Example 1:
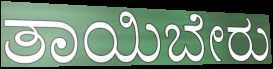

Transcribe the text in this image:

ತಾಯಿಬೇರು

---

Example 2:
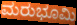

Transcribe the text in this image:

ಮರುಭೂಮಿ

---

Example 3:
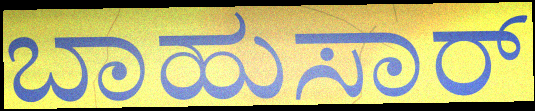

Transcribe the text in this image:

ಬಾಹುಸಾರ್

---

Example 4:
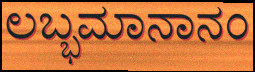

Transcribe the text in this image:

ಲಬ್ಭಮಾನಾನಂ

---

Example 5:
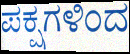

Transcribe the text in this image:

ಪಕ್ಷಗಳಿಂದ